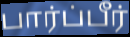
பார்ப்பீர்